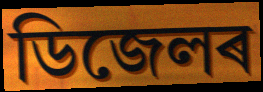
ডিজেলৰ